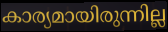
കാര്യമായിരുന്നില്ല